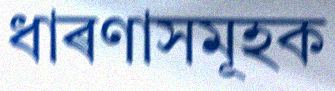
ধাৰণাসমূহক